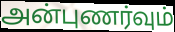
அன்புணர்வும்